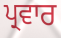
ਪ੍ਰਵਾਰ